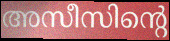
അസീസിന്റെ